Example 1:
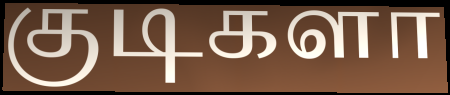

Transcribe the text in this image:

குடிகளா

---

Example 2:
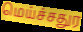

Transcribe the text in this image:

மெய்ச்சதுர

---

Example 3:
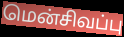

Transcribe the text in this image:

மென்சிவப்பு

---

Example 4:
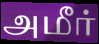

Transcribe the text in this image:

அமீர்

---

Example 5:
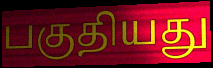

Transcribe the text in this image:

பகுதியது